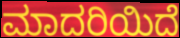
ಮಾದರಿಯಿದೆ